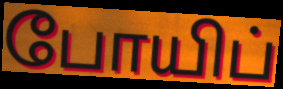
போயிப்